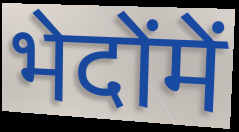
भेदोंमें